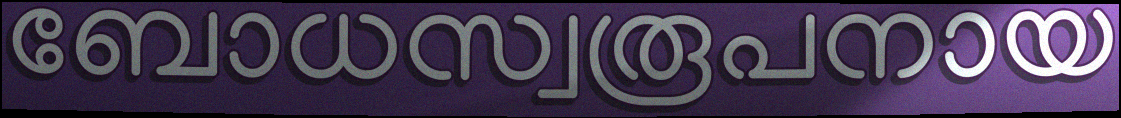
ബോധസ്വരൂപനായ